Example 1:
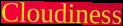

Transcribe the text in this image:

Cloudiness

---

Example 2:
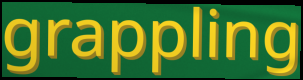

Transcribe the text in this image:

grappling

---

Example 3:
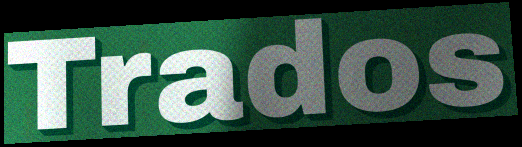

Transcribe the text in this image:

Trados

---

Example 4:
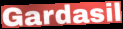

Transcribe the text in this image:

Gardasil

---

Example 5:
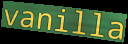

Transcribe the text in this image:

vanilla